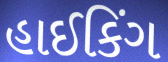
હાઈકિંગ